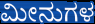
ಮೀನುಗಳ